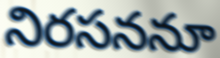
నిరసననూ